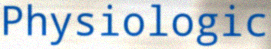
Physiologic